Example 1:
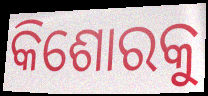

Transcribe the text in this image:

କିଶୋରକୁ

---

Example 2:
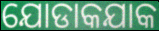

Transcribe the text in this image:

ଯୋଡାକଯାକ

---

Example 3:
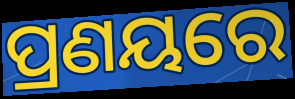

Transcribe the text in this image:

ପ୍ରଣୟରେ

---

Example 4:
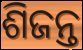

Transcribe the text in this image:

ଶିଜନ୍ତ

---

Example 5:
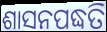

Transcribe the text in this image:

ଶାସନପଦ୍ଧତି